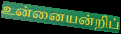
உன்னையன்றிப்